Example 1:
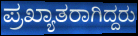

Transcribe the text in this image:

ಪ್ರಖ್ಯಾತರಾಗಿದ್ದರು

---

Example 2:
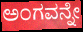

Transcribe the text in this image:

ಅಂಗವನ್ನೇ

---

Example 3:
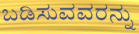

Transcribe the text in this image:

ಬಡಿಸುವವರನ್ನು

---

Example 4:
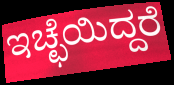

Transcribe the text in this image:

ಇಚ್ಛೆಯಿದ್ದರೆ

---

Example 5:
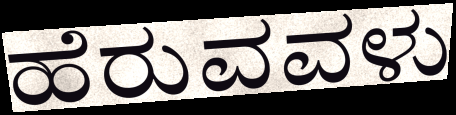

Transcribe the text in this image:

ಹೆರುವವಳು